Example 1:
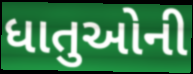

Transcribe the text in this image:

ધાતુઓની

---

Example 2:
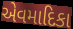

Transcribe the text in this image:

એવમાદિકા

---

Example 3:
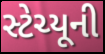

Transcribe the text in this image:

સ્ટેચ્યૂની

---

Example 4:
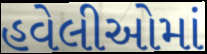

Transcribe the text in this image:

હવેલીઓમાં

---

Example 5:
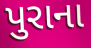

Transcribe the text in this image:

પુરાના